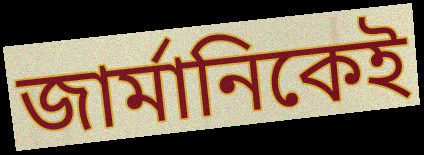
জার্মানিকেই